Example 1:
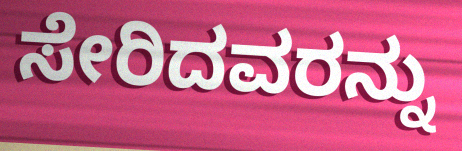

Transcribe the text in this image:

ಸೇರಿದವರನ್ನು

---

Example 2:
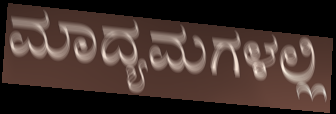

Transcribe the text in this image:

ಮಾದ್ಯಮಗಳಲ್ಲಿ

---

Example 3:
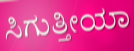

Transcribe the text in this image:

ಸಿಗುತ್ತೀಯಾ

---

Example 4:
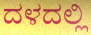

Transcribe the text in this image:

ದಳದಲ್ಲಿ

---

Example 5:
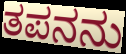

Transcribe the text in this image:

ತಪನನು